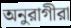
অনুরাগীরা